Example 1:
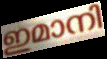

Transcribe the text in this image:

ഇമാനി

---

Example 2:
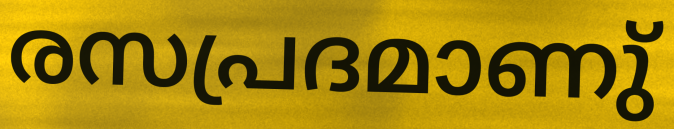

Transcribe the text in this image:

രസപ്രദമാണു്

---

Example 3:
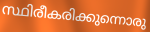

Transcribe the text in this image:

സ്ഥിരീകരിക്കുന്നൊരു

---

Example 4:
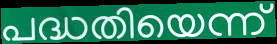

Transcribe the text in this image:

പദ്ധതിയെന്ന്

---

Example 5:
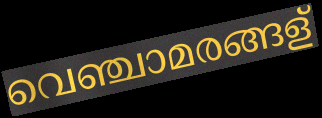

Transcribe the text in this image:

വെഞ്ചാമരങ്ങള്